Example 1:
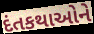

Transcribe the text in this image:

દંતકથાઓને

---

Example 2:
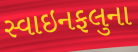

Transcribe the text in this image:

સ્વાઇનફલુના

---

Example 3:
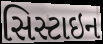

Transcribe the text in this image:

સિસ્ટાઇન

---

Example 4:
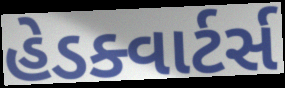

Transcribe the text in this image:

હેડક્વાર્ટર્સ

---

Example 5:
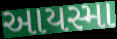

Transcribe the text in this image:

આયસ્મા